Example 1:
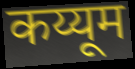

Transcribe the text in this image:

कय्यूम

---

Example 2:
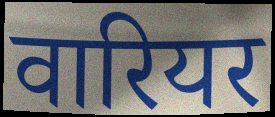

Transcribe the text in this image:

वारियर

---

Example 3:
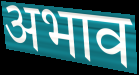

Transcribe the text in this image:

अभाव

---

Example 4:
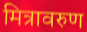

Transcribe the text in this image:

मित्रावरुण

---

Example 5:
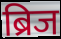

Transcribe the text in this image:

ब्रिज